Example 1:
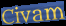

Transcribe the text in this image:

Civam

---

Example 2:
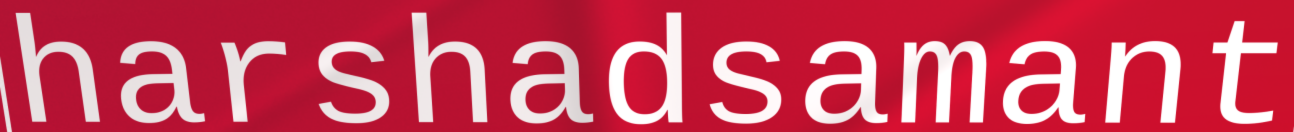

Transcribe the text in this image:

harshadsamant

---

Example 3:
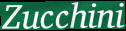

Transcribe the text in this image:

Zucchini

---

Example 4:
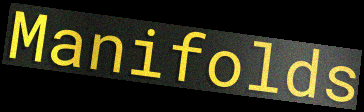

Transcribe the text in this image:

Manifolds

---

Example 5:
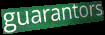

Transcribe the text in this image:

guarantors